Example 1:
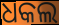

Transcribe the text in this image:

ଧକଲ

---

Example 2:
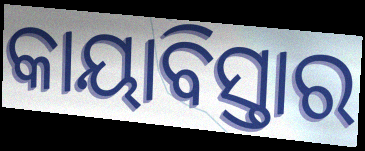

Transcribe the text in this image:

କାୟାବିସ୍ତାର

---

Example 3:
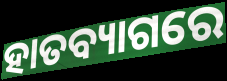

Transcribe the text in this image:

ହାତବ୍ୟାଗରେ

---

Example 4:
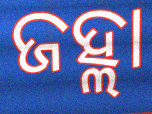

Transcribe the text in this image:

ଜହ୍ଲା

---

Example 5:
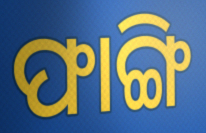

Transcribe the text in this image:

ଫାଙ୍ଗି